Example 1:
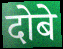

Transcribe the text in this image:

दोबे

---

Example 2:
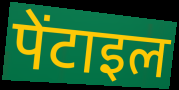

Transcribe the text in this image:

पेंटाइल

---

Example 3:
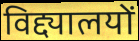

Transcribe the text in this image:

विद्द्यालयों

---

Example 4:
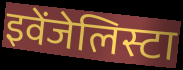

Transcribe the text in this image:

इवेंजेलिस्टा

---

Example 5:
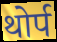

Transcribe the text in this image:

थोर्प